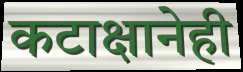
कटाक्षानेही